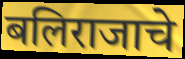
बलिराजाचे